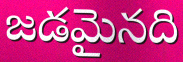
జడమైనది